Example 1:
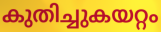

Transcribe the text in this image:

കുതിച്ചുകയറ്റം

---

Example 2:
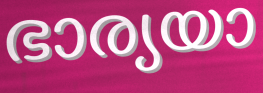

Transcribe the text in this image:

ഭാര്യയാ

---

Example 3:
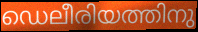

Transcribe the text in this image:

ഡെലീരിയത്തിനു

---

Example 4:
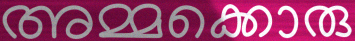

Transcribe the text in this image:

അമ്മക്കൊരു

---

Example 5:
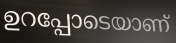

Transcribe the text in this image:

ഉറപ്പോടെയാണ്